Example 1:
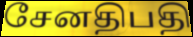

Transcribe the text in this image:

சேனதிபதி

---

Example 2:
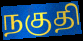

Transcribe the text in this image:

நகுதி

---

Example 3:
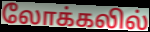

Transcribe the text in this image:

லோக்கலில்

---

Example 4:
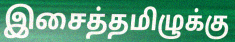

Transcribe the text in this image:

இசைத்தமிழுக்கு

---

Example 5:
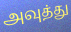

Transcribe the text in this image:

அவுத்து